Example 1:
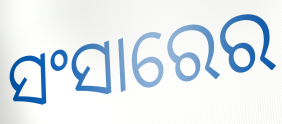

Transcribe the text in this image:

ସଂସାରେର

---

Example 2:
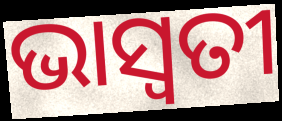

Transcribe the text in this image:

ଭାସ୍ଵତୀ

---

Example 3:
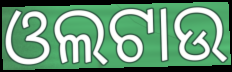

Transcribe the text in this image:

ଓଲଟାଉ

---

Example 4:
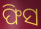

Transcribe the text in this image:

ଫିସ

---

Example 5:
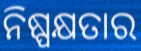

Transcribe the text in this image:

ନିଷ୍ପକ୍ଷତାର